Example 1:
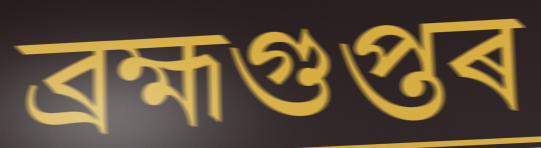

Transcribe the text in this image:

ব্ৰহ্মগুপ্তৰ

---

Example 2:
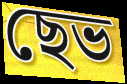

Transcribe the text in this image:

ছেভ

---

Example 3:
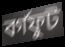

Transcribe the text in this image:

বৰ্গফুট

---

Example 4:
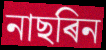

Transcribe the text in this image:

নাছৰিন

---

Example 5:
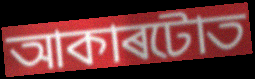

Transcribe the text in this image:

আকাৰটোত